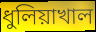
ধুলিয়াখাল